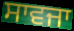
ਸਾਵਜਾ